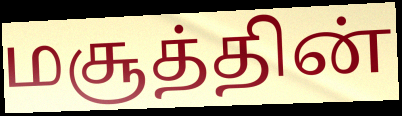
மசூத்தின்